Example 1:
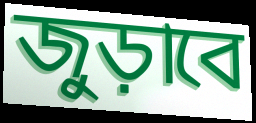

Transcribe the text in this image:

জুড়াবে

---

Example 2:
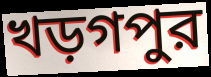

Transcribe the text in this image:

খড়গপুর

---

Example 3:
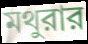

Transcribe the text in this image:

মথুরার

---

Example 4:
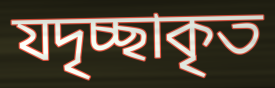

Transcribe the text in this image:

যদৃচ্ছাকৃত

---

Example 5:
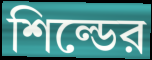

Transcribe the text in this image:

শিল্ডের